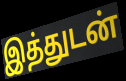
இத்துடன்